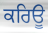
ਕਰਿਊ